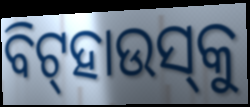
ବିଟ୍‌ହାଉସ୍‌କୁ